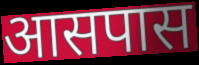
आसपास